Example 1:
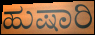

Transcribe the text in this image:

ಹುಷಾರಿ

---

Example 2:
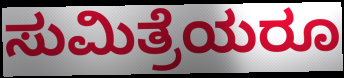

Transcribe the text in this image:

ಸುಮಿತ್ರೆಯರೂ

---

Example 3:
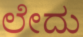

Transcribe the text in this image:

ಲೇದು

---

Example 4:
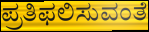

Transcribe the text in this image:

ಪ್ರತಿಫಲಿಸುವಂತೆ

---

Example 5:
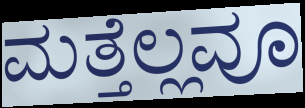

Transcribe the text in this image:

ಮತ್ತೆಲ್ಲವೂ